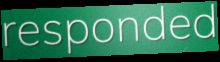
responded